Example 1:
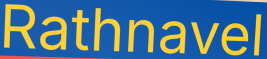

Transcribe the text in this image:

Rathnavel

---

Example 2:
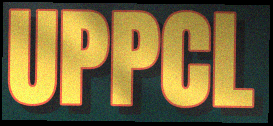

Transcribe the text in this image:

UPPCL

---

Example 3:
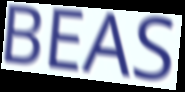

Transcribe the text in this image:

BEAS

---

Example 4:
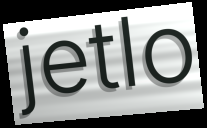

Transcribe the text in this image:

jetlo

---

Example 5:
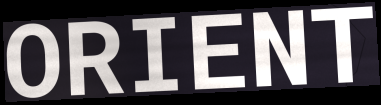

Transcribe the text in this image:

ORIENT